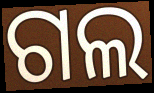
ଗଲ